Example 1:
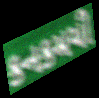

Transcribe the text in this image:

કનકમયી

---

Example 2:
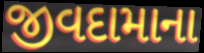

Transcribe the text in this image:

જીવદામાના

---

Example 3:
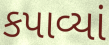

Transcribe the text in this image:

કપાવ્યાં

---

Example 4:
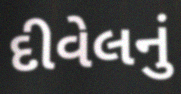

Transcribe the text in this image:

દીવેલનું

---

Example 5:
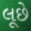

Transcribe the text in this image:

લૂછે